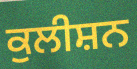
ਕੁਲੀਸ਼ਨ